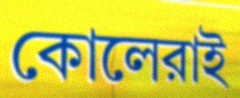
কোলেরাই